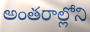
అంతరాల్లోని